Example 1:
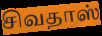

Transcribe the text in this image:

சிவதாஸ்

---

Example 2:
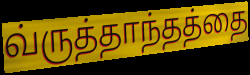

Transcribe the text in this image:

வ்ருத்தாந்தத்தை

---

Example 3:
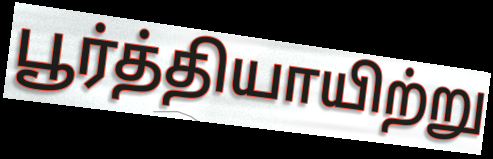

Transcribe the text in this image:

பூர்த்தியாயிற்று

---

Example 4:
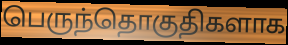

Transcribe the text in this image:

பெருந்தொகுதிகளாக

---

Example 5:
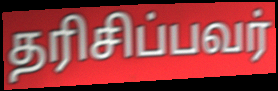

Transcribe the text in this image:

தரிசிப்பவர்